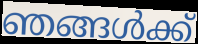
ഞങ്ങൾക്ക്